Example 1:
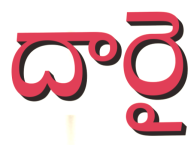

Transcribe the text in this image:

దారై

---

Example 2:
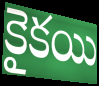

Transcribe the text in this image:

కైకయి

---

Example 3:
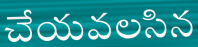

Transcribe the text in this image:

చేయవలసిన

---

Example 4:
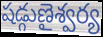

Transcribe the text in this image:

షడ్గుణైశ్వర్య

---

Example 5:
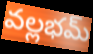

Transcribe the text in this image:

వల్లభమ్